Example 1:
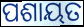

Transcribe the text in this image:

ପଶାୟତ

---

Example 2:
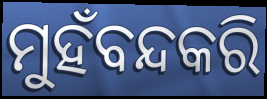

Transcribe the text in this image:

ମୁହଁବନ୍ଦକରି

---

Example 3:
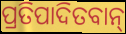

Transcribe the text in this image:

ପ୍ରତିପାଦିତବାନ୍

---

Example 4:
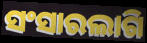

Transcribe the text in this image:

ସଂସାରଲାଗି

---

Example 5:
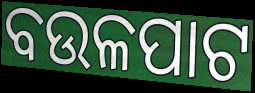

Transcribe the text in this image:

ବଉଳପାଟ